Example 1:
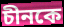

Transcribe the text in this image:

চীনকে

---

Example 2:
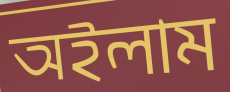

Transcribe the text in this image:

অইলাম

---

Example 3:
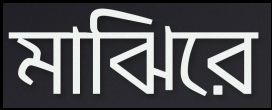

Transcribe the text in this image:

মাঝিরে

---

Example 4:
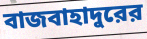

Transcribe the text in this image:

বাজবাহাদুরের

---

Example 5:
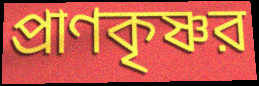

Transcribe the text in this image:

প্রাণকৃষ্ণর